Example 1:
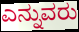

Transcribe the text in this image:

ಎನ್ನುವರು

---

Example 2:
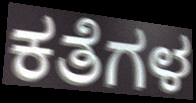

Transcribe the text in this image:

ಕತೆಗಳ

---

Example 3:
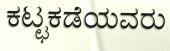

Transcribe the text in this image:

ಕಟ್ಟಕಡೆಯವರು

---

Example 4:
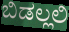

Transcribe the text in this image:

ಬಿಡಲ್ಲಲಿ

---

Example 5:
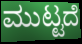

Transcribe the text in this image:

ಮುಟ್ಟದೆ